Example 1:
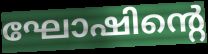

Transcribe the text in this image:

ഘോഷിന്റെ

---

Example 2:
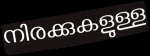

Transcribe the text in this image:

നിരക്കുകളുള്ള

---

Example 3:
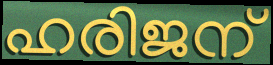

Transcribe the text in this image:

ഹരിജന്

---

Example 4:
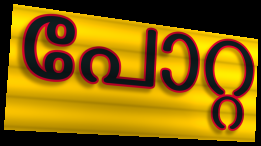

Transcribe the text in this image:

പോറ്റ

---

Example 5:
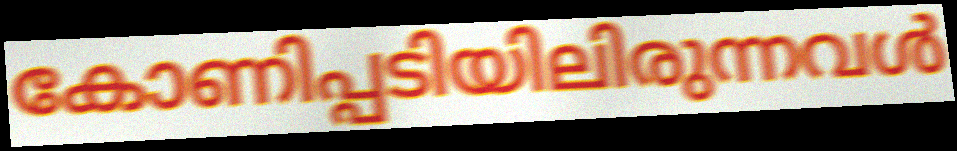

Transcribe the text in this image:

കോണിപ്പടിയിലിരുന്നവൾ